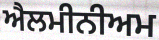
ਐਲਮੀਨੀਅਮ